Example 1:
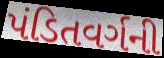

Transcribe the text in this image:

પંડિતવર્ગની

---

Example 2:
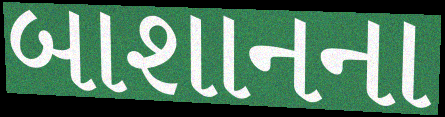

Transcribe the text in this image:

બાશાનના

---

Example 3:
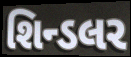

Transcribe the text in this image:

શિન્ડલર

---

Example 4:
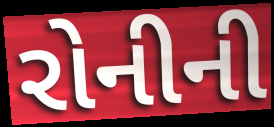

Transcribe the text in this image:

રોનીની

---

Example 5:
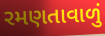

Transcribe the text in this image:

રમણતાવાળું